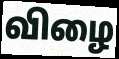
விழை